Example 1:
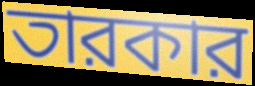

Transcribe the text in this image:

তারকার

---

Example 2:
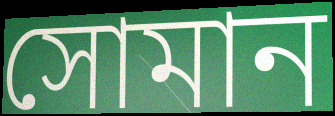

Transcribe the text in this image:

সোমান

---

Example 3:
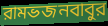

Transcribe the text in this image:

রামভজনবাবুর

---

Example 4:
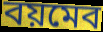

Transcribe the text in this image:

বয়মেব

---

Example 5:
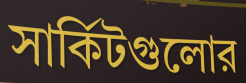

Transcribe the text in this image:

সার্কিটগুলোর